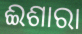
ଈଶାରା